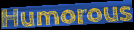
Humorous